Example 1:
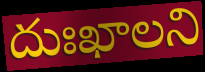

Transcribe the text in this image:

దుఃఖాలని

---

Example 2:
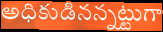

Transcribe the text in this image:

అధికుడినన్నట్టుగా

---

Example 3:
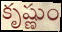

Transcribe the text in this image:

కృష్ణుం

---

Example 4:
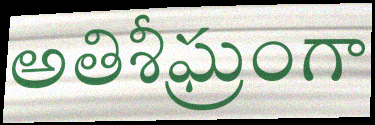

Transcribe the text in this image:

అతిశీఘ్రంగా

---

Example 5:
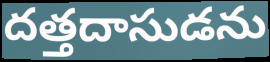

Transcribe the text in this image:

దత్తదాసుడను